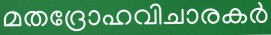
മതദ്രോഹവിചാരകർ